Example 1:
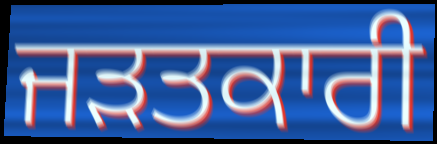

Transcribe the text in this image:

ਜੜਤਕਾਰੀ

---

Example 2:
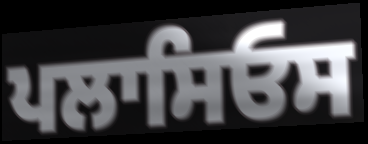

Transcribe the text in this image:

ਪਲਾਸਿਓਸ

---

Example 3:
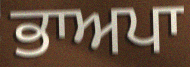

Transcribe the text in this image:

ਭਾਅਪਾ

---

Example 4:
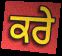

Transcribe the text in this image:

ਕਰੇ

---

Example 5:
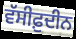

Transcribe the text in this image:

ਵੱਸੀਫ਼ੁਦੀਨ